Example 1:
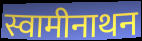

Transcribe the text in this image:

स्वामीनाथन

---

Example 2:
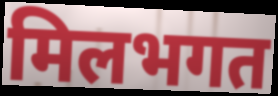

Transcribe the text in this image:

मिलभगत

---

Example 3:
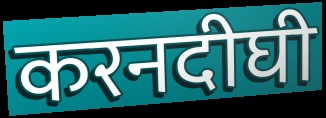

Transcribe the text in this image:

करनदीघी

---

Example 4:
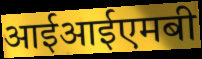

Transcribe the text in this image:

आईआईएमबी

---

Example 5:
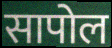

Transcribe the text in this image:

सापोल